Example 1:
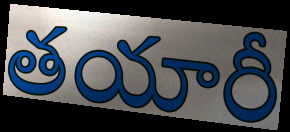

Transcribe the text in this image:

తయారీ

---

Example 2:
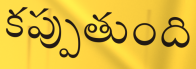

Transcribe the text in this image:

కప్పుతుంది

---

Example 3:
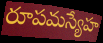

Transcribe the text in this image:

రూపమస్యేహ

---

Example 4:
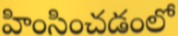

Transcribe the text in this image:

హింసించడంలో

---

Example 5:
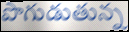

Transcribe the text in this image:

పొగుడుతున్న